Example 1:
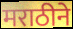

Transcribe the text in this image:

मराठीने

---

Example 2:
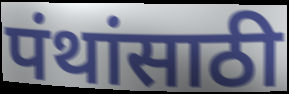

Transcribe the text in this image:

पंथांसाठी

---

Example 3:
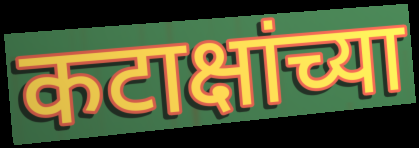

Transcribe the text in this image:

कटाक्षांच्या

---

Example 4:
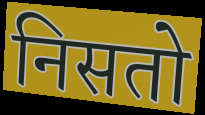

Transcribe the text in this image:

निसतो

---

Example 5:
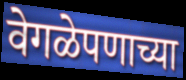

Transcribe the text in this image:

वेगळेपणाच्या